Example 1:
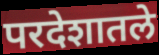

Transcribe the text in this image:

परदेशातले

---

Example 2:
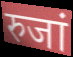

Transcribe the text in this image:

रुजां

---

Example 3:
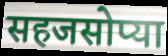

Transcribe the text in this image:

सहजसोप्या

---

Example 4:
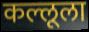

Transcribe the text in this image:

कल्लूला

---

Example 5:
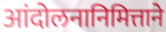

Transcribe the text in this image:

आंदोलनानिमित्ताने